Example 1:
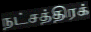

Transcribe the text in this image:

நட்சத்திரக்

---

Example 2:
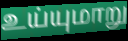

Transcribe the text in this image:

உய்யுமாறு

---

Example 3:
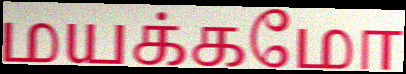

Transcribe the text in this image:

மயக்கமோ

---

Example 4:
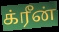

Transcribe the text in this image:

க்ரீன்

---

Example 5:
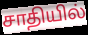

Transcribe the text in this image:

சாதியில்